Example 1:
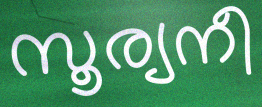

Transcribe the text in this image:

സൂര്യനീ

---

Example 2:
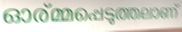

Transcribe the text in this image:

ഓര്മ്മപ്പെടുത്തലാണ്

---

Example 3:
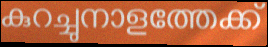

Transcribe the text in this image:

കുറച്ചുനാളത്തേക്ക്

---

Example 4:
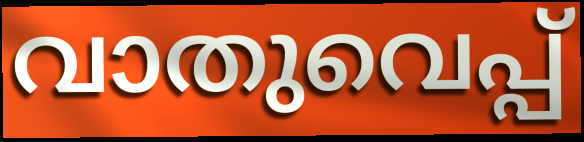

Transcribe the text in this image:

വാതുവെപ്പ്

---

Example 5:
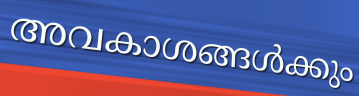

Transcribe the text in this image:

അവകാശങ്ങൾക്കും